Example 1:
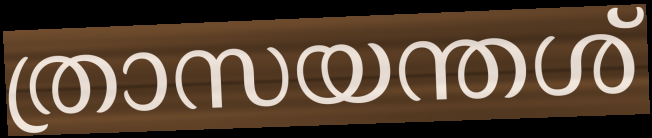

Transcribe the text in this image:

ത്രാസയന്തശ്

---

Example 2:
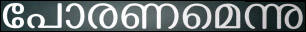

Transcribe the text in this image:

പോരണമെന്നു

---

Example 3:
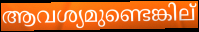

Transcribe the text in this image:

ആവശ്യമുണ്ടെങ്കില്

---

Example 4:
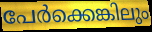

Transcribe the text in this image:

പേർക്കെങ്കിലും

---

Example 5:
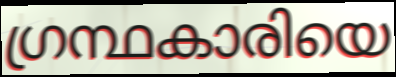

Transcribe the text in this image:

ഗ്രന്ഥകാരിയെ